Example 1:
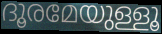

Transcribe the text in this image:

ദൂരമേയുള്ളൂ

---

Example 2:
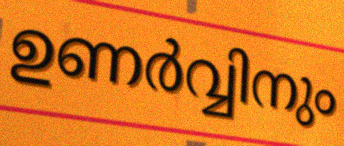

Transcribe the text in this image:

ഉണർവ്വിനും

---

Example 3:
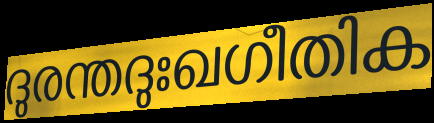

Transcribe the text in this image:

ദുരന്തദുഃഖഗീതിക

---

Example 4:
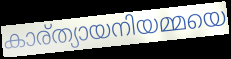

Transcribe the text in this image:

കാര്ത്യായനിയമ്മയെ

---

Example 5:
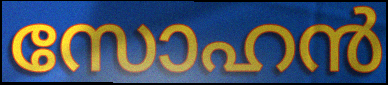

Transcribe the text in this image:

സോഹൻ